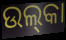
ଉଲ୍‌କା